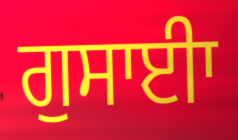
ਗੁਸਾਈਾ